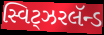
સ્વિટ્ઝરલૅન્ડ